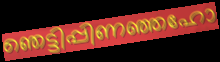
ഞെട്ടിപ്പിണഞ്ഞഹോ